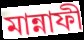
মান্নাফী